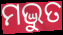
ମଦ୍ଭୁତ